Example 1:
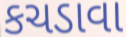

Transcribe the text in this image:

કચડાવા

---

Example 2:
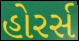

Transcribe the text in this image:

હોરર્સ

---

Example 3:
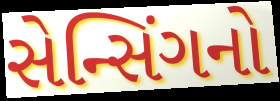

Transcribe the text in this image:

સેન્સિંગનો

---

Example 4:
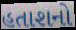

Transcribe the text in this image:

હતાશનો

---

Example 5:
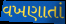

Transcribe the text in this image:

વખણાતાં